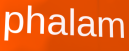
phalam